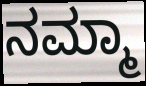
ನಮ್ಮಾ